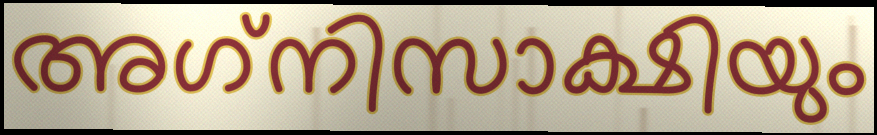
അഗ്‌നിസാക്ഷിയും